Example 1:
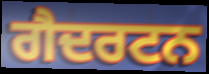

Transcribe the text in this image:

ਗੈਦਰਟਨ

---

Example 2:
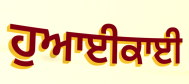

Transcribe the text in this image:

ਹੁਆਈਕਾਈ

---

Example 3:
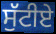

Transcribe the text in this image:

ਸੁੱਟੀਏ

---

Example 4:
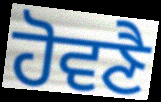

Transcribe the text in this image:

ਹੋਵਣੈ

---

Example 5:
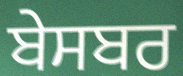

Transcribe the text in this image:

ਬੇਸਬਰ